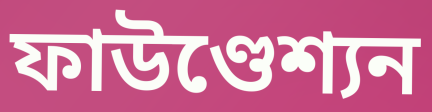
ফাউণ্ডেশ্যন